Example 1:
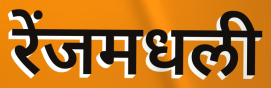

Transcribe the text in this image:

रेंजमधली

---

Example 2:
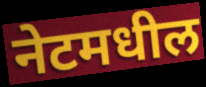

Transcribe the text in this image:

नेटमधील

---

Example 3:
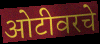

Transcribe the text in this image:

ओटीवरचे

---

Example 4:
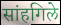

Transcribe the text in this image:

सांहगिले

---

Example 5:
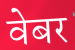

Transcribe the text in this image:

वेबर